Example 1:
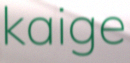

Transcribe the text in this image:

kaige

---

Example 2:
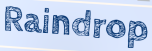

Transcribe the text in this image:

Raindrop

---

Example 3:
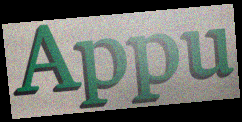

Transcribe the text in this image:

Appu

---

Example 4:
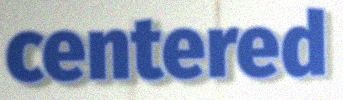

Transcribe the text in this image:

centered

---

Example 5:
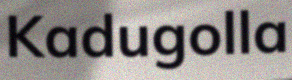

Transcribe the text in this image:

Kadugolla